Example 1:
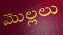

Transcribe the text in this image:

మొల్లలు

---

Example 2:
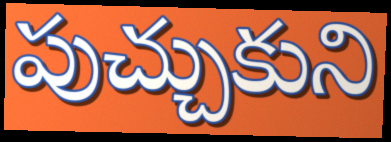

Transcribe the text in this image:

పుచ్చుకుని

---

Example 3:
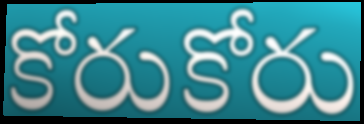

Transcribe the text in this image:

కోరుకోరు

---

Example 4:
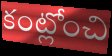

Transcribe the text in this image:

కంట్లోంచి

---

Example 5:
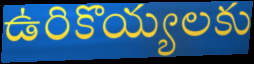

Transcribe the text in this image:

ఉరికొయ్యలకు